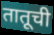
तातूची